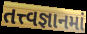
તત્ત્વજ્ઞાનમાં